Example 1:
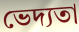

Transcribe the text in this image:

ভেদ্যতা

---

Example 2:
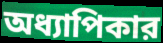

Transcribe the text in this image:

অধ্যাপিকার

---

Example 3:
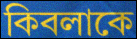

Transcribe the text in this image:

কিবলাকে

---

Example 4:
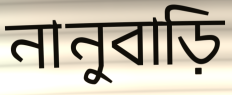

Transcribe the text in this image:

নানুবাড়ি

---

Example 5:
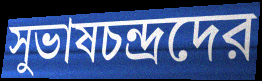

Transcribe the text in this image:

সুভাষচন্দ্রদের